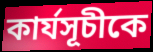
কার্যসূচীকে